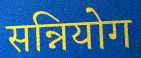
सन्नियोग